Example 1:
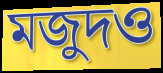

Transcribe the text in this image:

মজুদও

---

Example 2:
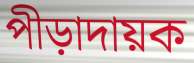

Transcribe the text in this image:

পীড়াদায়ক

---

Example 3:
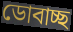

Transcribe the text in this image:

ডোবাচ্ছ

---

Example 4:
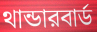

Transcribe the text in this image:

থান্ডারবার্ড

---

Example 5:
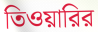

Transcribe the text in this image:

তিওয়ারির